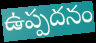
ఉప్పదనం